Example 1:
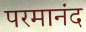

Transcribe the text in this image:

परमानंद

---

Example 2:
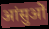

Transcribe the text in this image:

आंसुओं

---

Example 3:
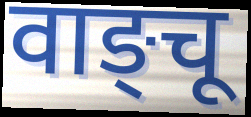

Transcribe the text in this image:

वाङ्चू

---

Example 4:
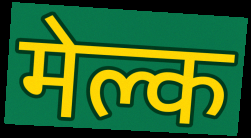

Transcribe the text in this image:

मेल्क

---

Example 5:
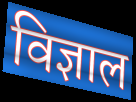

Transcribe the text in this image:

विज्ञाल